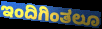
ಇಂದಿಗಿಂತಲೂ